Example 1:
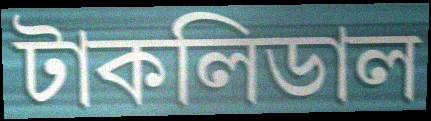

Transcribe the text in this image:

টাকলিডাল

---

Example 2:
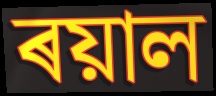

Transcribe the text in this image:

ৰয়াল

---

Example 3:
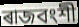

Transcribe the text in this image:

ৰাজবংশী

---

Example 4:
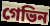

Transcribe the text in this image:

গেভিন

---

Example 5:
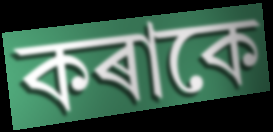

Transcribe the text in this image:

কৰাকে